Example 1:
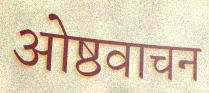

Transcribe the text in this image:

ओष्ठवाचन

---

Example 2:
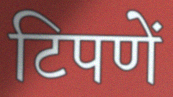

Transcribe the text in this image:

टिपणें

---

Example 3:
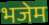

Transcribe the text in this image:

भजेम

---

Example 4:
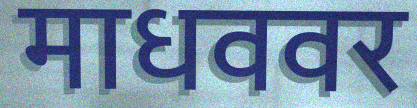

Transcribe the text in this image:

माधववर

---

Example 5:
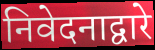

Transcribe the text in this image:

निवेदनाद्वारे